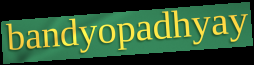
bandyopadhyay